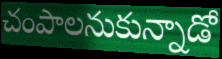
చంపాలనుకున్నాడో